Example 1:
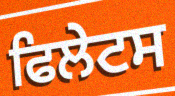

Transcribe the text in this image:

ਫਿਲੇਟਸ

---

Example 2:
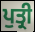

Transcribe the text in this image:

ਪੁਤ੍ਰੀ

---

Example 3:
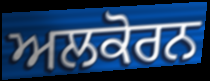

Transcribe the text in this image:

ਅਲਕੋਰਨ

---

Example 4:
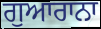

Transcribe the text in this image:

ਗੁਆਰਾਨਾ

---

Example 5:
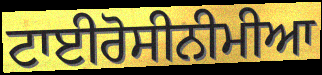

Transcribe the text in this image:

ਟਾਈਰੋਸੀਨੀਮੀਆ